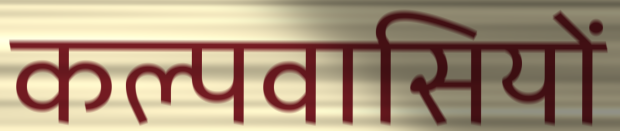
कल्पवासियों